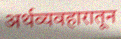
अर्थव्यवहारातून